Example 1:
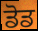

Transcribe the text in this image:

ਡੋਡ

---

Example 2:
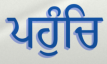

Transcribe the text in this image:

ਪਹੁੰਚਿ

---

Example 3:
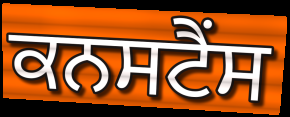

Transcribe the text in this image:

ਕਨਸਟੈਂਸ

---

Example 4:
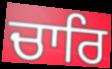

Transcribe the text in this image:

ਚਾਰਿ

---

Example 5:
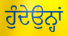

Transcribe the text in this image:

ਹੁੰਦੇਉਨ੍ਹਾਂ